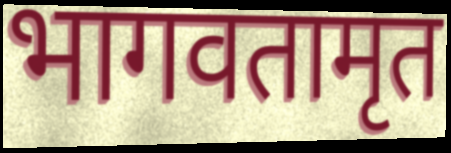
भागवतामृत